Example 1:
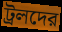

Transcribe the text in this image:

ট্রলদের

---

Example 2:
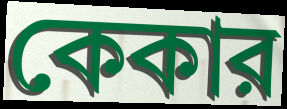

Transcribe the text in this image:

কেকার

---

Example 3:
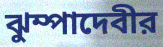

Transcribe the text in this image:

ঝুম্পাদেবীর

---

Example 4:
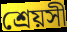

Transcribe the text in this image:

শ্রেয়সী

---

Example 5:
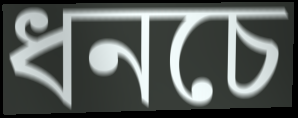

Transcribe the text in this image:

ধনচে